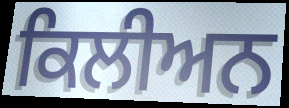
ਕਿਲੀਅਨ